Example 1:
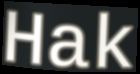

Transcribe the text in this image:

Hak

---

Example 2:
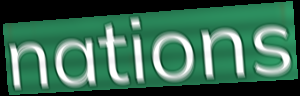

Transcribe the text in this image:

nations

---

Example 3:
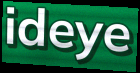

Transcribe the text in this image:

ideye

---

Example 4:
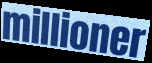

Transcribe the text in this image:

millioner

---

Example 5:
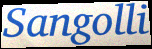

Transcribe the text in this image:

Sangolli